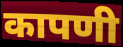
कापणी